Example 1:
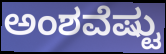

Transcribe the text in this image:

ಅಂಶವೆಷ್ಟು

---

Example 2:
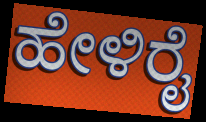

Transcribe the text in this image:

ಹೇಳಿರೈ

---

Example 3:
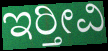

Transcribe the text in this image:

ಇರ‍್ತೀವಿ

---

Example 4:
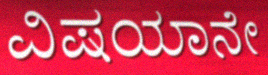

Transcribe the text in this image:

ವಿಷಯಾನೇ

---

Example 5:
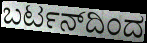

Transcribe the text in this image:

ಬರ್ಟನ್‌ದಿಂದ